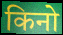
किनो